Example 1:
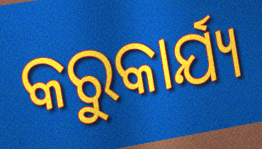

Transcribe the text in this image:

କରୁକାର୍ଯ୍ୟ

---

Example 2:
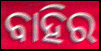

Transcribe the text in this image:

ବାହିର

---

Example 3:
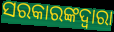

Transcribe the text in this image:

ସରକାରଙ୍କଦ୍ବାରା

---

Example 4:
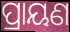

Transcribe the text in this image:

ପ୍ରାୟଣ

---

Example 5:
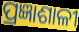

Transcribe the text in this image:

ପ୍ରଜ୍ଞାଶାଳୀ